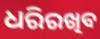
ଧରିରଖିବ